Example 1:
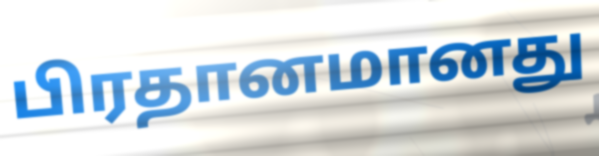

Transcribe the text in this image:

பிரதானமானது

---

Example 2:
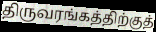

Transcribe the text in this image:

திருவரங்கத்திற்குத்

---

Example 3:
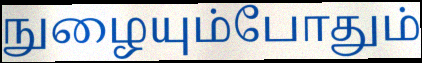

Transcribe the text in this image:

நுழையும்போதும்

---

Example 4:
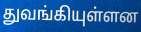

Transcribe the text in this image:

துவங்கியுள்ளன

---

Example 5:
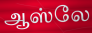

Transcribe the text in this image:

ஆஸ்லே